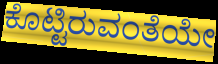
ಕೊಟ್ಟಿರುವಂತೆಯೇ